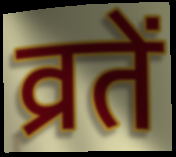
व्रतें